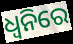
ଧ୍ଵନିରେ